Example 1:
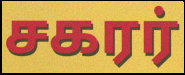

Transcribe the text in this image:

சகரர்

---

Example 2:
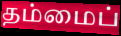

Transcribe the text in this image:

தம்மைப்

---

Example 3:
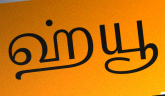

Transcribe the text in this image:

ஹ்யூ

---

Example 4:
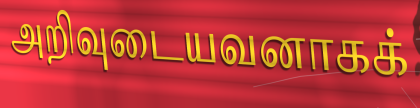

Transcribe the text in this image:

அறிவுடையவனாகக்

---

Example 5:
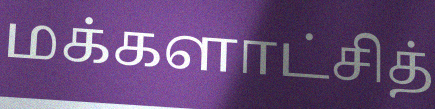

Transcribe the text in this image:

மக்களாட்சித்